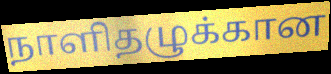
நாளிதழுக்கான